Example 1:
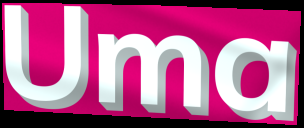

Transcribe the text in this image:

Uma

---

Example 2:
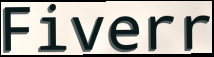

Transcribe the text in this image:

Fiverr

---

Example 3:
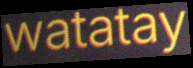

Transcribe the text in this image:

watatay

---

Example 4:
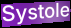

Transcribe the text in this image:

Systole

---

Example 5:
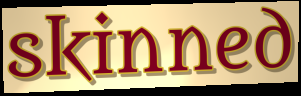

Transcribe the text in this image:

skinned